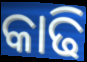
କାଢି